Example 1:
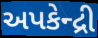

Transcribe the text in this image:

અપકેન્દ્રી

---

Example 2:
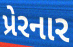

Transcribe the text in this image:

પ્રેરનાર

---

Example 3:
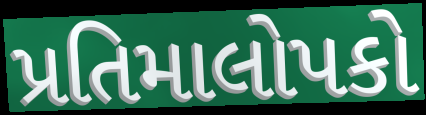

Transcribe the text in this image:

પ્રતિમાલોપકો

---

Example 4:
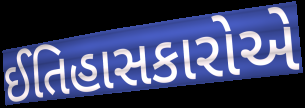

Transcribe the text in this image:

ઈતિહાસકારોએ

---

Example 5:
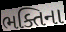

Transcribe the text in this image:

ભક્તિના